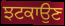
ਝਟਕਾਉਣ